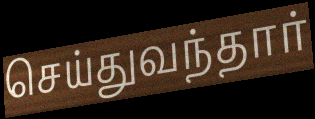
செய்துவந்தார்